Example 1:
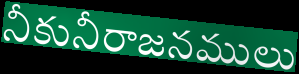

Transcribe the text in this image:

నీకునీరాజనములు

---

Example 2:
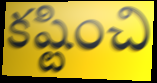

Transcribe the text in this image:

కష్టించి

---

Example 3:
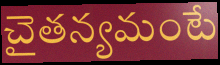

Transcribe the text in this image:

చైతన్యమంటే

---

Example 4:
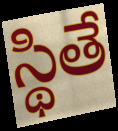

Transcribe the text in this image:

స్థితే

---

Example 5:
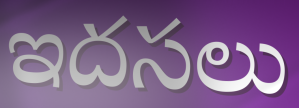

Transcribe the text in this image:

ఇదసలు